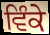
ਵਿੰਕੇ